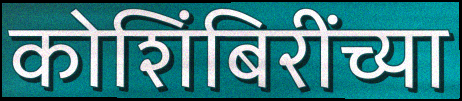
कोशिंबिरींच्या